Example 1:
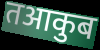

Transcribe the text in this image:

तआकुब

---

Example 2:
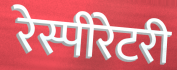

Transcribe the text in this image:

रेस्पीरेटरी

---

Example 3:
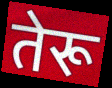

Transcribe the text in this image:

तेरू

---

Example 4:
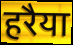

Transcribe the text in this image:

हरैया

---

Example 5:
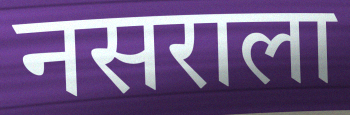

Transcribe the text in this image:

नसराला